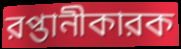
রপ্তানীকারক